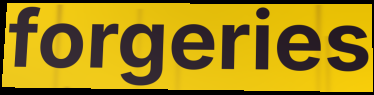
forgeries